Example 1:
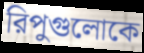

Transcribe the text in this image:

রিপুগুলোকে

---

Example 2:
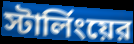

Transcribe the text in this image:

স্টার্লিংয়ের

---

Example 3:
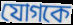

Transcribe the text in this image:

যোগকে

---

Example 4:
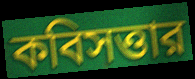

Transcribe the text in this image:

কবিসত্তার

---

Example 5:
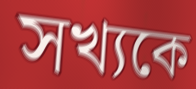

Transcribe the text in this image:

সখ্যকে